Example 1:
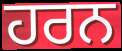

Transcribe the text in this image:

ਹਰਨ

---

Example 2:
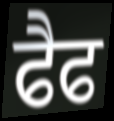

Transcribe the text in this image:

ਫੈਫ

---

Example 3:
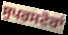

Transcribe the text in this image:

ਸੁਪਰਸਟੋਰਾਂ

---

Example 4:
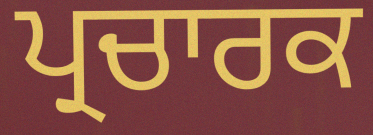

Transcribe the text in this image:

ਪ੍ਰਚਾਰਕ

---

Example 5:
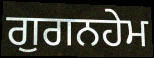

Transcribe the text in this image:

ਗੁਗਨਹੇਮ